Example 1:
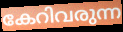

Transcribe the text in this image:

കേറിവരുന്ന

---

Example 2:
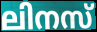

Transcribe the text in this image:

ലിനസ്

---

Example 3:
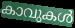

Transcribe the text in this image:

കാവുകൾ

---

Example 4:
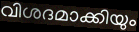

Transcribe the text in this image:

വിശദമാക്കിയും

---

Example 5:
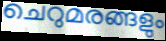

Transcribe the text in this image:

ചെറുമരങ്ങളും